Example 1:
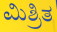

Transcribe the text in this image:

ಮಿಶ್ರಿತ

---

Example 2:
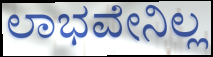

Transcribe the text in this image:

ಲಾಭವೇನಿಲ್ಲ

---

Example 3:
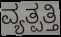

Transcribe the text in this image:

ವ್ಯತ್ಪತ್ತಿ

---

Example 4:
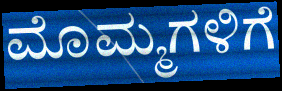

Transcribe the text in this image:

ಮೊಮ್ಮಗಳಿಗೆ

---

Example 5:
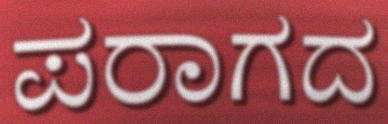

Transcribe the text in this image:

ಪರಾಗದ